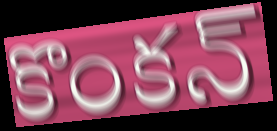
కొంకన్